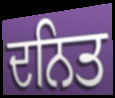
ਦਨਿਤ